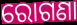
ରୋଗଣା